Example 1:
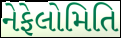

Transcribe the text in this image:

નેફેલોમિતિ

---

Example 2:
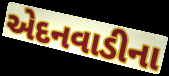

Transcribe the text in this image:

એદનવાડીના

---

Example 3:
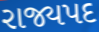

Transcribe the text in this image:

રાજ્યપદ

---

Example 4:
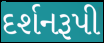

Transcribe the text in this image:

દર્શનરૂપી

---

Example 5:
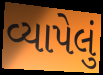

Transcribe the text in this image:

વ્યાપેલું